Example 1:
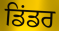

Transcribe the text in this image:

ਡਿਂਡਰ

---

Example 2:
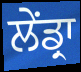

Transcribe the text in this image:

ਲੇਂਡ੍ਰਾ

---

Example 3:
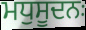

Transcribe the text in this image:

ਮਧੁਸੂਦਨਃ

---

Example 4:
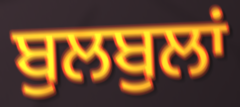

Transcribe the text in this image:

ਬੁਲਬੁਲਾਂ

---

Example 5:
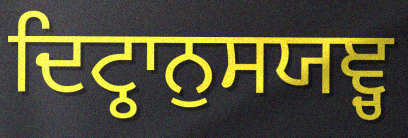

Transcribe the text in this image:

ਦਿਟ੍ਠਾਨੁਸਯਞ੍ਚ